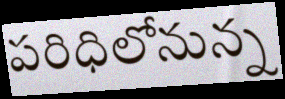
పరిధిలోనున్న